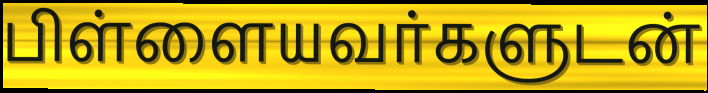
பிள்ளையவர்களுடன்